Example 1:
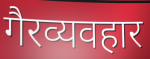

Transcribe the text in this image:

गैरव्यवहार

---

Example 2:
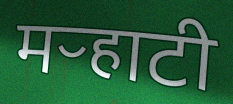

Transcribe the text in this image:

मऱ्हाटी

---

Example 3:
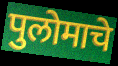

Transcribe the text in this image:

पुलोमाचे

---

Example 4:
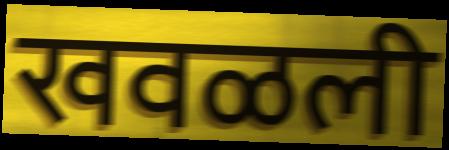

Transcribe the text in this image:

खवळली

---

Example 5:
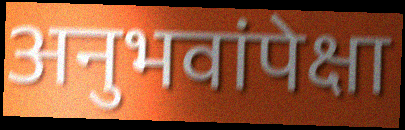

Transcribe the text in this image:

अनुभवांपेक्षा